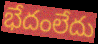
భేదంలేదు